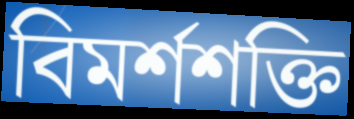
বিমর্শশক্তি